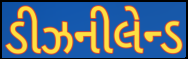
ડીઝનીલેન્ડ